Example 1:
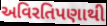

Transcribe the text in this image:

અવિરતિપણાથી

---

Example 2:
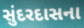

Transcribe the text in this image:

સુંદરદાસના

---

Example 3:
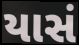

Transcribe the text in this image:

યાસં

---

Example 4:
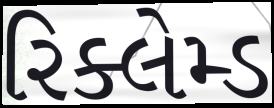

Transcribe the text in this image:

રિક્લેમ્ડ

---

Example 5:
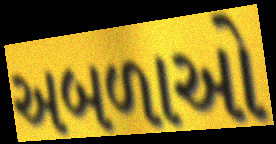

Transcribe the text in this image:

અબળાઓ